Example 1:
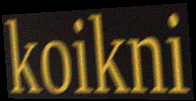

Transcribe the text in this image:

koikni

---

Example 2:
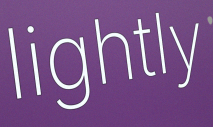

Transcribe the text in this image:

lightly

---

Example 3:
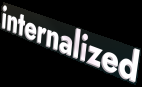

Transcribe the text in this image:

internalized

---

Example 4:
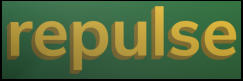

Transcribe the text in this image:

repulse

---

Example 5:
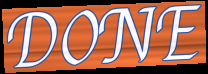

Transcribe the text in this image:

DONE